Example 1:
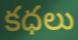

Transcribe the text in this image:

కధలు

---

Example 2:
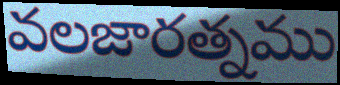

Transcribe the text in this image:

వలజారత్నము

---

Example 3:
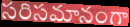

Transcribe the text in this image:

సరిసమానంగా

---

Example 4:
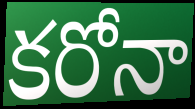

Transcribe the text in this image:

కరోనా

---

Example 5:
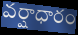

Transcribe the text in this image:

వర్షాధారం